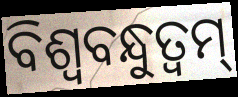
ବିଶ୍ଵବନ୍ଧୁତ୍ଵମ୍